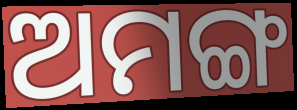
ଅମଙ୍ଗ